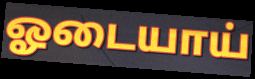
ஓடையாய்